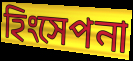
হিংসেপনা